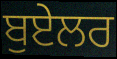
ਬੁਏਲਰ